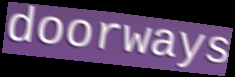
doorways